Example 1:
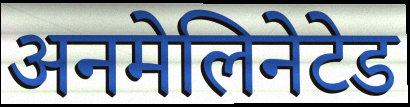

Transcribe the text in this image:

अनमेलिनेटेड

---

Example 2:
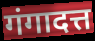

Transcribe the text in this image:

गंगादत्त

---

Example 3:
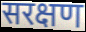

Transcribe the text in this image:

सरक्षण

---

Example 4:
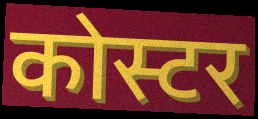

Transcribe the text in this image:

कोस्टर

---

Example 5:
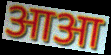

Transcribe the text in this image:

आआ